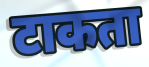
टाकता